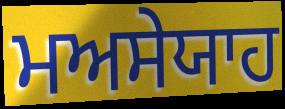
ਮਅਸੇਯਾਹ